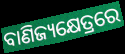
ବାଣିଜ୍ୟକ୍ଷେତ୍ରରେ